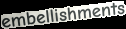
embellishments